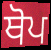
ਥੋਪ